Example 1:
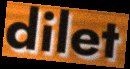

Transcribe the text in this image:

dilet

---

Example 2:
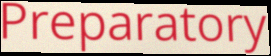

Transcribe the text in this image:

Preparatory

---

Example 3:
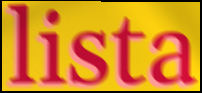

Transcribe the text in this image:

lista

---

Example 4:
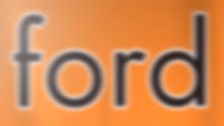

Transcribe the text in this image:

ford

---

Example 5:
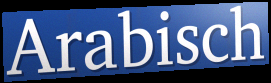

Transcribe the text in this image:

Arabisch